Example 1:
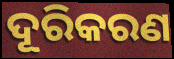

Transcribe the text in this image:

ଦୂରିକରଣ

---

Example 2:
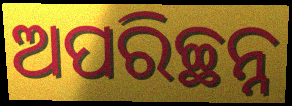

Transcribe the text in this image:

ଅପରିଚ୍ଛନ୍ନ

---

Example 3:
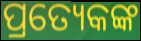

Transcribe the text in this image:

ପ୍ରତ୍ଯେକଙ୍କ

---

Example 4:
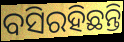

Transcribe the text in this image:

ବସିରହିଛନ୍ତି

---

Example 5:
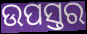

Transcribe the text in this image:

ଉପସ୍ତର